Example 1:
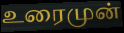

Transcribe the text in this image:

உரைமுன்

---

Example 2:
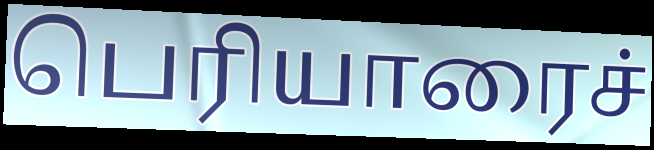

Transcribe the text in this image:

பெரியாரைச்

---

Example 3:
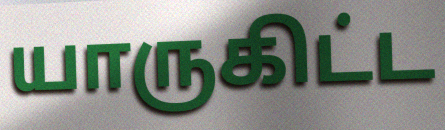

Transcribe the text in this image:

யாருகிட்ட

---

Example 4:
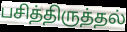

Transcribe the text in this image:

பசித்திருத்தல்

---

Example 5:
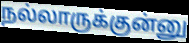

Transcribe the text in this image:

நல்லாருக்குன்னு